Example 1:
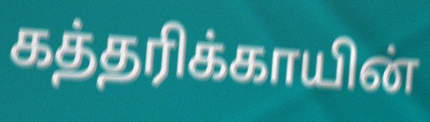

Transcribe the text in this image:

கத்தரிக்காயின்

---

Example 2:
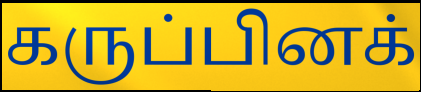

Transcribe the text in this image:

கருப்பினக்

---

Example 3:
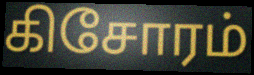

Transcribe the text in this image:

கிசோரம்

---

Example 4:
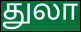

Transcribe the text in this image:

துலா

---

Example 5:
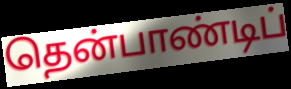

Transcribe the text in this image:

தென்பாண்டிப்